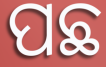
ପଛ